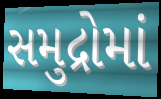
સમુદ્રોમાં